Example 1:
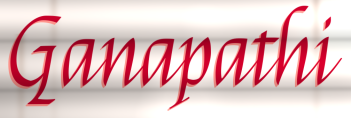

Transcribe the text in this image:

Ganapathi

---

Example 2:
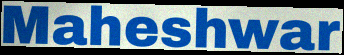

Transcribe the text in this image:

Maheshwar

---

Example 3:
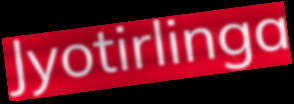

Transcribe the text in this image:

Jyotirlinga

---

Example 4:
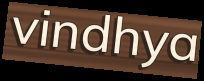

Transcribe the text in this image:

vindhya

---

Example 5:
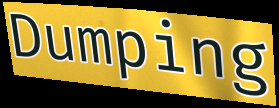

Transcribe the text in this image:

Dumping